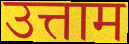
उत्ताम